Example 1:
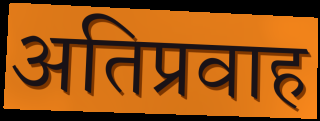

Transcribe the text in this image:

अतिप्रवाह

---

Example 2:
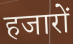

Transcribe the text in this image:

हजारों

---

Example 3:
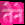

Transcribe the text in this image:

तेने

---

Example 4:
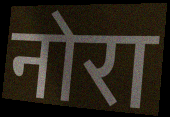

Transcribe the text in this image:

नोरा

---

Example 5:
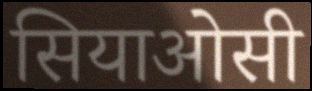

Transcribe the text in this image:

सियाओसी